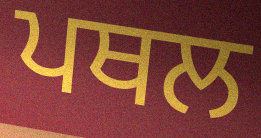
ਪਥਲ